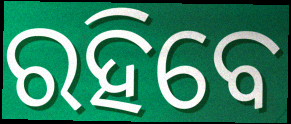
ରହିବେ